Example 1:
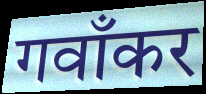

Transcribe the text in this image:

गवाँकर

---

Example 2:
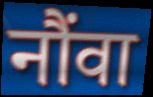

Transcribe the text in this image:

नौंवा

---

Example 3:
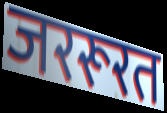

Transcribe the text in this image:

जररूरत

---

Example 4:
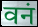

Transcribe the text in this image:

वनं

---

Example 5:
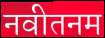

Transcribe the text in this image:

नवीतनम